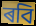
ৰবি